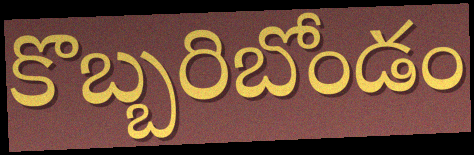
కొబ్బరిబోండం